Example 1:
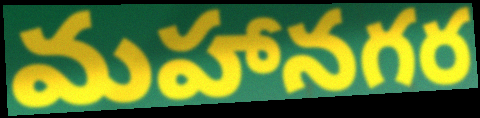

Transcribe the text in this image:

మహానగర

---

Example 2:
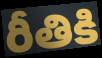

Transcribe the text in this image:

రీతికి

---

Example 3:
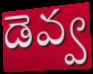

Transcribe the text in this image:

డెవ్వ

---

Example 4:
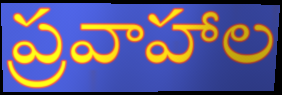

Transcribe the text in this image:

ప్రవాహాల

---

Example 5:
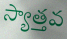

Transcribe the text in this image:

స్యాత్తవ